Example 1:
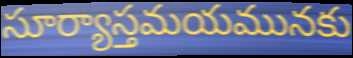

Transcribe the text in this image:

సూర్యాస్తమయమునకు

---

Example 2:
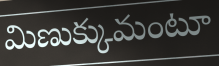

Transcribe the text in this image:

మిణుక్కుమంటూ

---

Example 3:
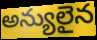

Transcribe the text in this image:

అన్యులైన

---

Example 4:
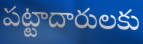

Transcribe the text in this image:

పట్టాదారులకు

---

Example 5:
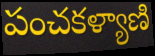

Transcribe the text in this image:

పంచకళ్యాణి